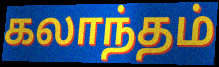
கலாந்தம்